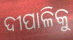
ଦୀପାଳିକୁ